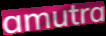
amutra